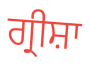
ਗ੍ਰੀਸ਼ਾ